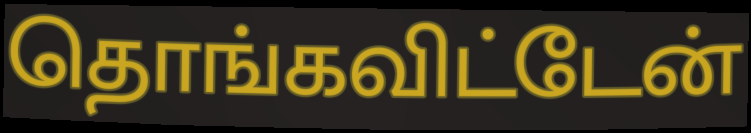
தொங்கவிட்டேன்